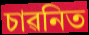
চাৱনিত